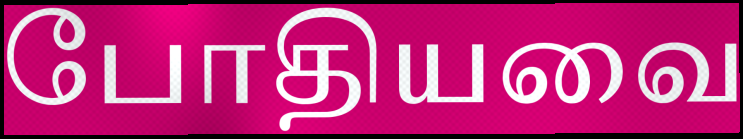
போதியவை